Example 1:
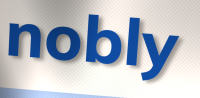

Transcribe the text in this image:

nobly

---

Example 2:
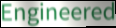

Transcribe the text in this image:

Engineered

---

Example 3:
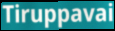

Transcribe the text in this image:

Tiruppavai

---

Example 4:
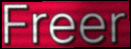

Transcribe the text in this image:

Freer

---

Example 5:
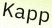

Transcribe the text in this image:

Kapp